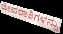
ಜೀವರಾಶಿಗಳನ್ನು